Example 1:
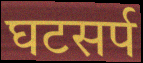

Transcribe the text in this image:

घटसर्प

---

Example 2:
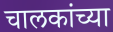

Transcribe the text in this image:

चालकांच्या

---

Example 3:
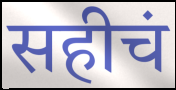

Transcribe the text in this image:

सहीचं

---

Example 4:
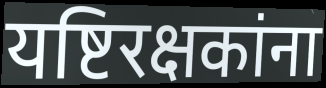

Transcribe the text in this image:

यष्टिरक्षकांना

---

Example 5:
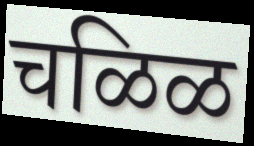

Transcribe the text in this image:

चळिळ